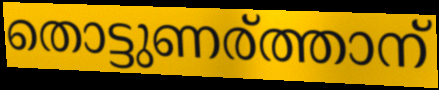
തൊട്ടുണര്ത്താന്